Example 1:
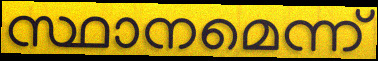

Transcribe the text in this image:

സ്ഥാനമെന്ന്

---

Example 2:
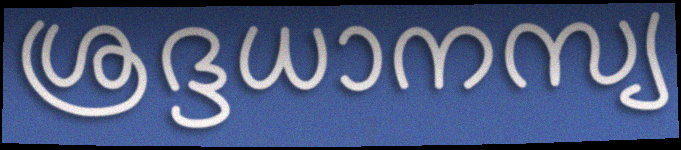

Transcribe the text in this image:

ശ്രദ്ദധാനസ്യ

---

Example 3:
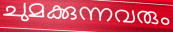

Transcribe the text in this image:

ചുമക്കുന്നവരും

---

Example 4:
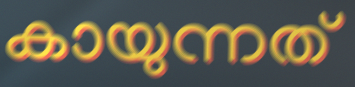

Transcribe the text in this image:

കായുന്നത്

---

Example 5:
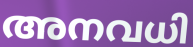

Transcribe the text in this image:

അനവധി